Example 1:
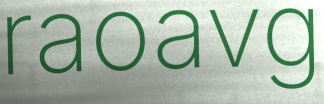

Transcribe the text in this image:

raoavg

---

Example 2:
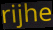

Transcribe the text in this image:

rijhe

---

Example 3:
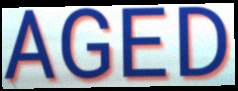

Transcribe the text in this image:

AGED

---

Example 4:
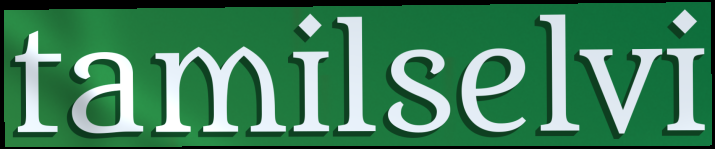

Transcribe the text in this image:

tamilselvi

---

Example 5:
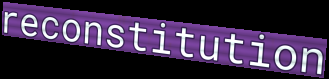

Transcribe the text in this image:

reconstitution